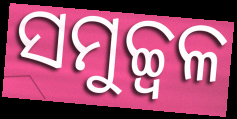
ସମୁଚ୍ଚ୍ୱଳ